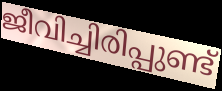
ജീവിച്ചിരിപ്പുണ്ട്